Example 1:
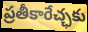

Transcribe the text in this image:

ప్రతీకారేచ్ఛకు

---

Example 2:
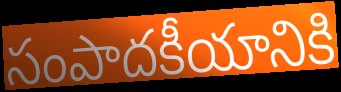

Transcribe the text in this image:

సంపాదకీయానికి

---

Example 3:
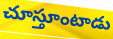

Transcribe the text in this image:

చూస్తూంటాడు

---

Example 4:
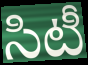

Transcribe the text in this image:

సిటీ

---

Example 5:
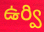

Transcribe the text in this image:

ఉర్వి